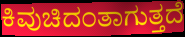
ಕಿವುಚಿದಂತಾಗುತ್ತದೆ